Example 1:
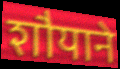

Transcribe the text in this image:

शौयाने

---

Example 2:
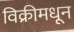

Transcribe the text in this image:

विक्रीमधून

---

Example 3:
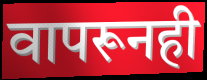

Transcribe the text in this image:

वापरूनही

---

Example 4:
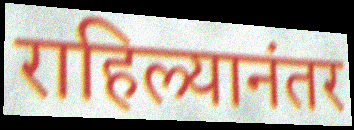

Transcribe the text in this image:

राहिल्यानंतर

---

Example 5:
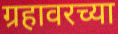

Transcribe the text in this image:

ग्रहावरच्या